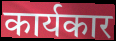
कार्यकार